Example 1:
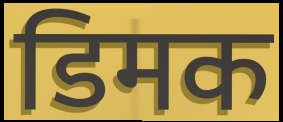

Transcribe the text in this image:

डिमक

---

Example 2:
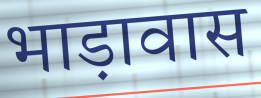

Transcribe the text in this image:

भाड़ावास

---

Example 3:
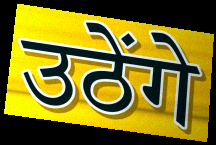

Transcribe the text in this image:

उठेंगे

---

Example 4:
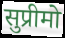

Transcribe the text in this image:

सुप्रीमो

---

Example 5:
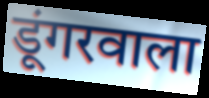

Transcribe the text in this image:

डूंगरवाला